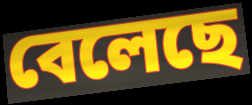
বেলেছে